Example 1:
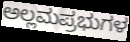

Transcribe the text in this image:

ಅಲ್ಲಮಪ್ರಭುಗಳ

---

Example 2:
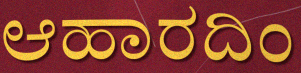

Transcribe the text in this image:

ಆಹಾರದಿಂ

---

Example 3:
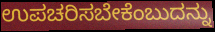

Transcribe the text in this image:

ಉಪಚರಿಸಬೇಕೆಂಬುದನ್ನು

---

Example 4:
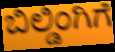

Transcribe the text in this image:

ಬಿಲ್ಡಿಂಗಿಗೆ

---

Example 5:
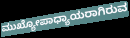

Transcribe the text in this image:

ಮುಖ್ಯೋಪಾಧ್ಯಾಯರಾಗಿರುವ